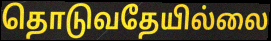
தொடுவதேயில்லை